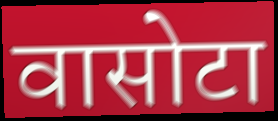
वासोटा